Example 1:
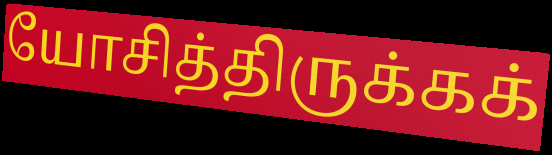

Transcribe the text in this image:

யோசித்திருக்கக்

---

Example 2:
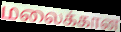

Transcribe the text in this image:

மலைக்கான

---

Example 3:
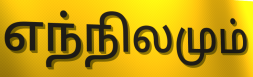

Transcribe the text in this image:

எந்நிலமும்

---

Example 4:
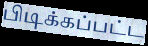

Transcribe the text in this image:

பிடிக்கப்பட்ட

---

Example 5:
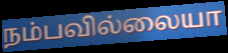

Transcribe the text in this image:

நம்பவில்லையா